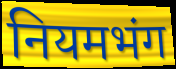
नियमभंग